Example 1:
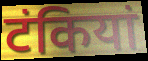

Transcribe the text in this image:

टंकियां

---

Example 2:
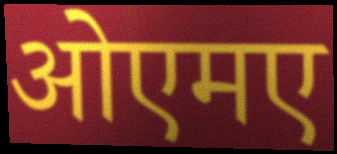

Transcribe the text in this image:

ओएमए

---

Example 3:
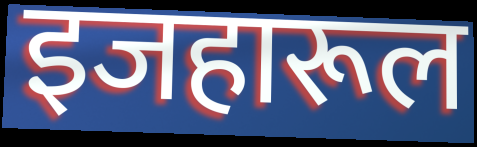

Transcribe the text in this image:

इजहारूल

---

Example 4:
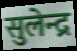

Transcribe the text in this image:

सुलेन्द्र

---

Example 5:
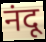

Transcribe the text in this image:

नंदू